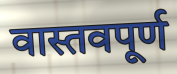
वास्तवपूर्ण